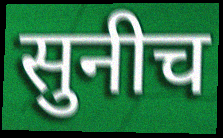
सुनीच